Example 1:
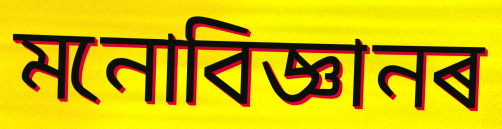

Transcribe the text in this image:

মনোবিজ্ঞানৰ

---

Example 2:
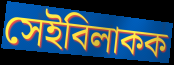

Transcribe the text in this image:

সেইবিলাকক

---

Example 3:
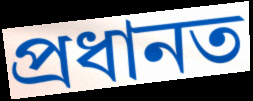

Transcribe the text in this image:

প্ৰধানত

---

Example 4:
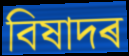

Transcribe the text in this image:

বিষাদৰ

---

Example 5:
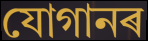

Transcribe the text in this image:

যোগানৰ